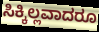
ಸಿಕ್ಕಿಲ್ಲವಾದರೂ